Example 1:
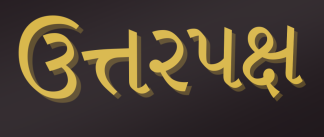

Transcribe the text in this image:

ઉત્તરપક્ષ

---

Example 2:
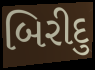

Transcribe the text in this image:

બિરીદુ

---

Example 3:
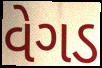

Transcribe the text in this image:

વેગડ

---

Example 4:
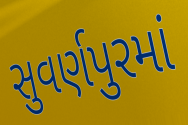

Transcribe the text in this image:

સુવર્ણપુરમાં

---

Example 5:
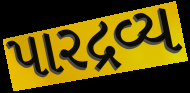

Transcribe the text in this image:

પારદ્રવ્ય